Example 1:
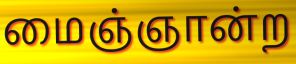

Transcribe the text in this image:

மைஞ்ஞான்ற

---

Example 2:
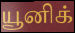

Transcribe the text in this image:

யூனிக்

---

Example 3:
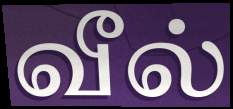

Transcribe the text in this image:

வீல்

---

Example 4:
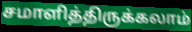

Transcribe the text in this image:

சமாளித்திருக்கலாம்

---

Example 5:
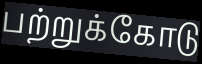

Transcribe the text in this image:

பற்றுக்கோடு